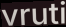
vruti